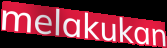
melakukan